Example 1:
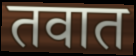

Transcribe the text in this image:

तवात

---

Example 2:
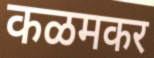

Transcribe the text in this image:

कळमकर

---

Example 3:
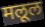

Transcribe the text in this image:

मलूल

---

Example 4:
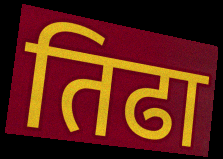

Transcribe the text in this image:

तिढा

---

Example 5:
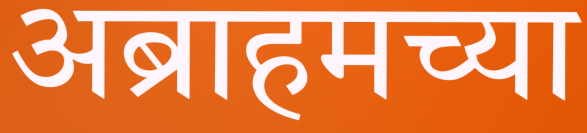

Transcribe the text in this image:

अब्राहमच्या